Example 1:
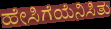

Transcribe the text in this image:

ಹೇಸಿಗೆಯೆನಿಸಿತು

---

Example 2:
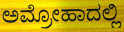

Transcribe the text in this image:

ಅಮ್ರೋಹಾದಲ್ಲಿ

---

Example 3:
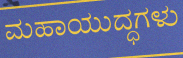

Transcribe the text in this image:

ಮಹಾಯುದ್ಧಗಳು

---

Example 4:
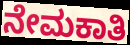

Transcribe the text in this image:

ನೇಮಕಾತಿ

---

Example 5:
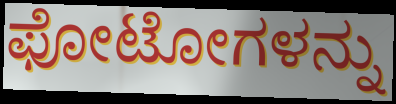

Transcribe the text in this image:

ಫೋಟೋಗಳನ್ನು